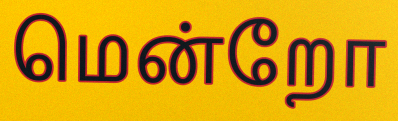
மென்றோ